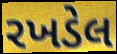
રખડેલ